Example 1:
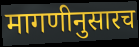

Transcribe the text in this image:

मागणीनुसारच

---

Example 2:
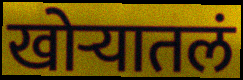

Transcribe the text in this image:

खोऱ्यातलं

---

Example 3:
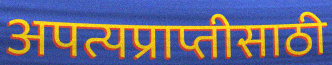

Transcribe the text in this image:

अपत्यप्राप्तीसाठी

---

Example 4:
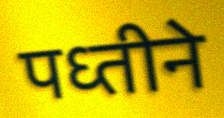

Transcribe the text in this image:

पध्तीने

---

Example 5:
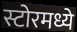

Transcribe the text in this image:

स्टोरमध्ये